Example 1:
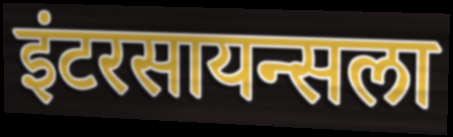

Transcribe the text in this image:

इंटरसायन्सला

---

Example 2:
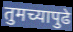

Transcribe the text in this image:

तुमच्यापुढे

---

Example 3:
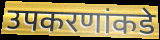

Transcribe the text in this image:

उपकरणांकडे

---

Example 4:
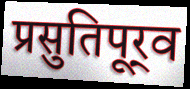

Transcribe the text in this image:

प्रसुतिपूर्व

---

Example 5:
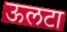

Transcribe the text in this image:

ऊलटा